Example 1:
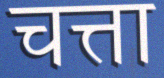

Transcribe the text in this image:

चत्ता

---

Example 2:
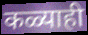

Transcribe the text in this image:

कळ्याही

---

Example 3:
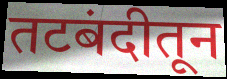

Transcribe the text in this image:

तटबंदीतून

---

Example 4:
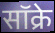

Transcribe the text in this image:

सॉक्रे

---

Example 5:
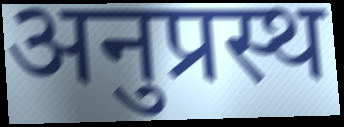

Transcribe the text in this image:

अनुप्रस्थ